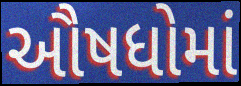
ઔષધોમાં